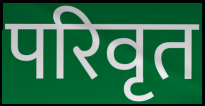
परिवृत